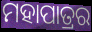
ମହାପାତ୍ରର